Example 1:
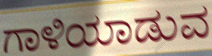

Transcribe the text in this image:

ಗಾಳಿಯಾಡುವ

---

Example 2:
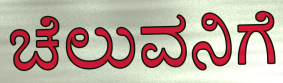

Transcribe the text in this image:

ಚೆಲುವನಿಗೆ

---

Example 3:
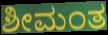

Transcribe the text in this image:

ಶೀಮಂತ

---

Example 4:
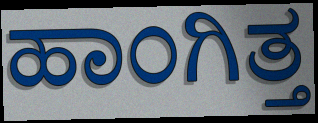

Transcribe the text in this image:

ಹಾಂಗಿತ್ತ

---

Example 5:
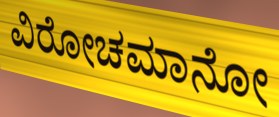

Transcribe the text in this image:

ವಿರೋಚಮಾನೋ